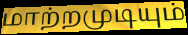
மாற்றமுடியும்